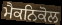
ਮੈਕਨਿਕੋਲ